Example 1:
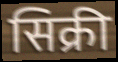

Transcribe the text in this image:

सिक्री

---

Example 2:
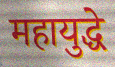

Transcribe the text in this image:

महायुद्धे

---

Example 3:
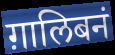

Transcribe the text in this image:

ग़ालिबनं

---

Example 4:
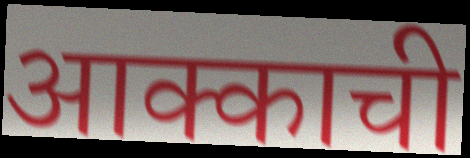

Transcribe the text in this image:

आक्काची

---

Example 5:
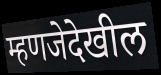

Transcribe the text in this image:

म्हणजेदेखील